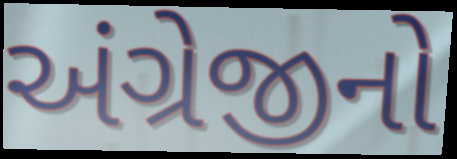
અંગ્રેજીનો